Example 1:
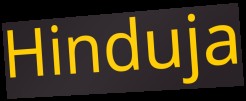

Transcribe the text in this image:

Hinduja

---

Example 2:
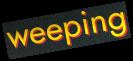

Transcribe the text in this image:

weeping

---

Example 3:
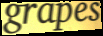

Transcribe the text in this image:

grapes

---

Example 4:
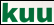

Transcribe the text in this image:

kuu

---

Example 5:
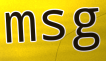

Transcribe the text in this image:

msg